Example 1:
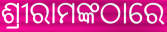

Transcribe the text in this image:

ଶ୍ରୀରାମଙ୍କଠାରେ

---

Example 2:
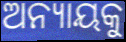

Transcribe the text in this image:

ଅନ୍ୟାୟକୁ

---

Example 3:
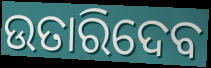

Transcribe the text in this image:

ଉତାରିଦେବ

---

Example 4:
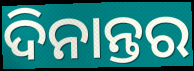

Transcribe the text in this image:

ଦିନାନ୍ତର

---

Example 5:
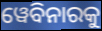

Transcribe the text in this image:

ୱେବିନାରକୁ